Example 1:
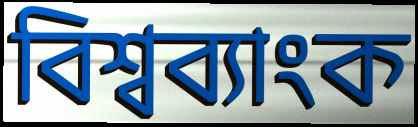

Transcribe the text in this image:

বিশ্বব্যাংক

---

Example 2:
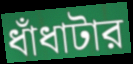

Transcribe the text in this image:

ধাঁধাটার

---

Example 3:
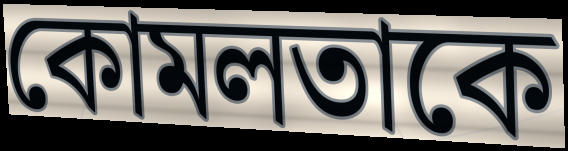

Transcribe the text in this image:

কোমলতাকে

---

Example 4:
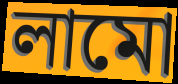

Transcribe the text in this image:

লামো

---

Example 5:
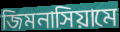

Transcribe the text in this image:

জিমনাসিয়ামে